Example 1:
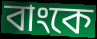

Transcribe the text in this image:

বাংকে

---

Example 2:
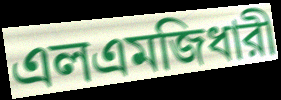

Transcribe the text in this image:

এলএমজিধারী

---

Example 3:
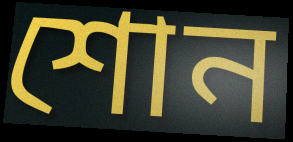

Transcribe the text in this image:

শোন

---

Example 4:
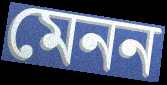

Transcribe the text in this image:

মেনন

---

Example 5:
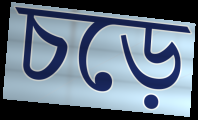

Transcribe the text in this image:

চড়ে